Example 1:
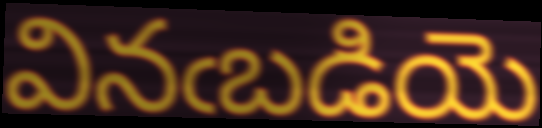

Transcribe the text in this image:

వినఁబడియె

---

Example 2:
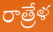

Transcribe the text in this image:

రాత్రేళ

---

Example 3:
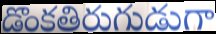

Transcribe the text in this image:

డొంకతిరుగుడుగా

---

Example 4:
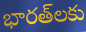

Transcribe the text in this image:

భారత్‌లకు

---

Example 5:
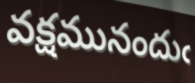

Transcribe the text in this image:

వక్షమునందుఁ